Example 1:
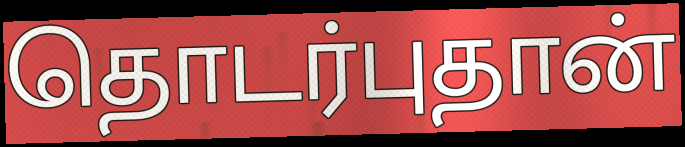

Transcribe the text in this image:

தொடர்புதான்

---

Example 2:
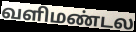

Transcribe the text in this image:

வளிமண்டல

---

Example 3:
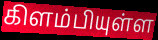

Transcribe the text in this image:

கிளம்பியுள்ள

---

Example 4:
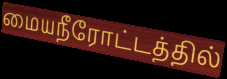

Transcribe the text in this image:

மையநீரோட்டத்தில்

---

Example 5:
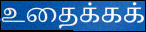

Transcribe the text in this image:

உதைக்கக்